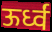
ऊर्ध्व॑